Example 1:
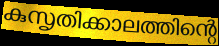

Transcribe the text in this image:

കുസൃതിക്കാലത്തിന്റെ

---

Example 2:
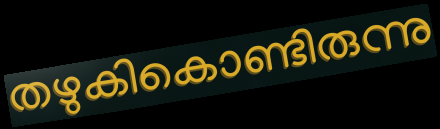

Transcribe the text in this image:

തഴുകികൊണ്ടിരുന്നു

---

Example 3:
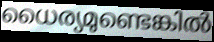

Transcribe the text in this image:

ധൈര്യമുണ്ടെങ്കിൽ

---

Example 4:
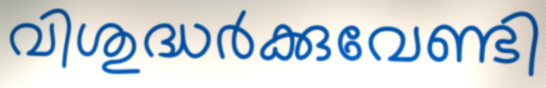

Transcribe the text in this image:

വിശുദ്ധർക്കുവേണ്ടി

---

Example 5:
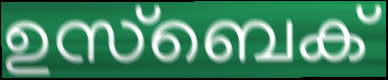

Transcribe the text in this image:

ഉസ്ബെക്